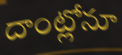
దాంట్లోనూ